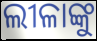
ଲୀଳାଙ୍କୁ